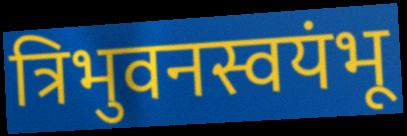
त्रिभुवनस्वयंभू